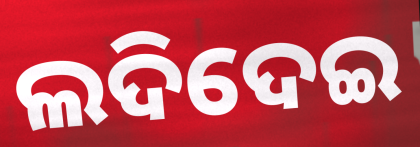
ଲଦିଦେଇ